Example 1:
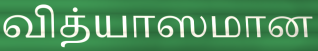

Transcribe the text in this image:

வித்யாஸமான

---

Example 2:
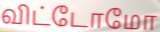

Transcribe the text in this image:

விட்டோமோ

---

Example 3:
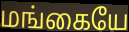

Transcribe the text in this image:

மங்கையே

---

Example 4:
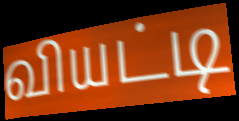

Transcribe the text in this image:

வியட்டி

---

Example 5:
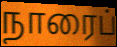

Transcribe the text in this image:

நாரைப்